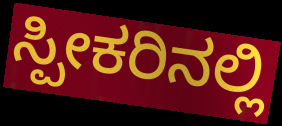
ಸ್ಪೀಕರಿನಲ್ಲಿ